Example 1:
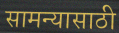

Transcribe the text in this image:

सामन्यासाठी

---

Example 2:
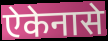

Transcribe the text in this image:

ऐकेनासे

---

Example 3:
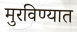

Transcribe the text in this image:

मुरविण्यात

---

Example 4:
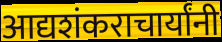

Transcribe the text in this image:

आद्यशंकराचार्यांनी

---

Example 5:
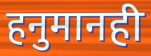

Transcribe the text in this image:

हनुमानही